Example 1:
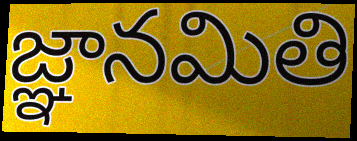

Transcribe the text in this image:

జ్ఞానమితి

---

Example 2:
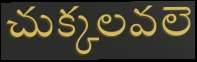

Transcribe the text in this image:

చుక్కలవలె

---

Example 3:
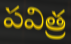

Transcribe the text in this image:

పవిత్ర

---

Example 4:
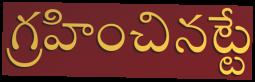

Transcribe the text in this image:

గ్రహించినట్టే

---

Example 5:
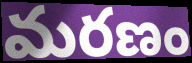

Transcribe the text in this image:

మరణం